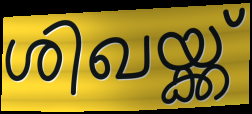
ശിഖയ്ക്ക്